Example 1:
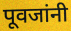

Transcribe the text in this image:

पूवजांनी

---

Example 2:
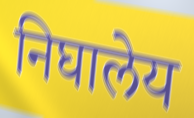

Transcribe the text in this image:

निघालेय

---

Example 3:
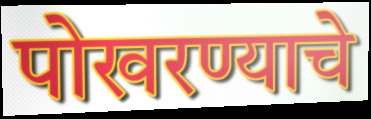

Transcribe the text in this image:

पोखरण्याचे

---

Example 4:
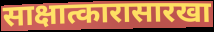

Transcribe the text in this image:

साक्षात्कारासारखा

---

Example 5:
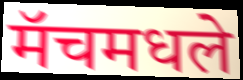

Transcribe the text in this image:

मॅचमधले